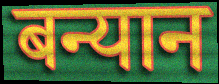
बन्यान